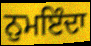
ਨੁਮਇੰਦਾ